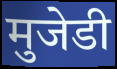
मुजेडी